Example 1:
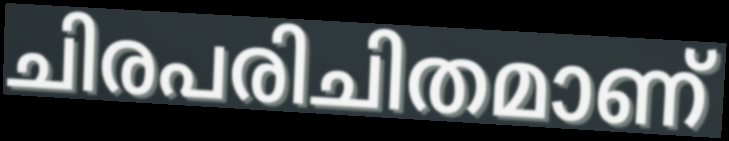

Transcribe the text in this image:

ചിരപരിചിതമാണ്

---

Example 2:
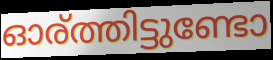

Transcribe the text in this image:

ഓര്ത്തിട്ടുണ്ടോ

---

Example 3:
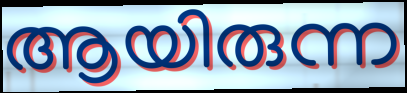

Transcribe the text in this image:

ആയിരുന്ന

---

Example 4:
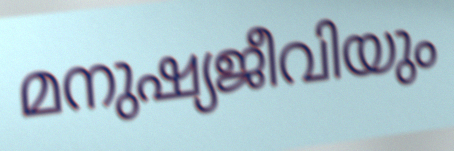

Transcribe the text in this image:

മനുഷ്യജീവിയും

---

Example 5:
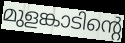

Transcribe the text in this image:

മുളങ്കാടിന്റെ